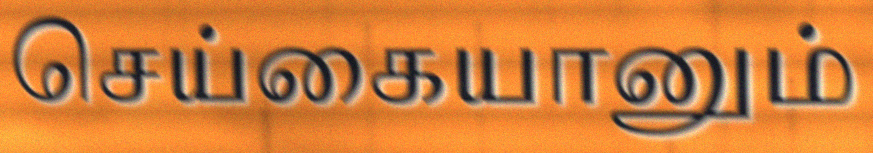
செய்கையானும்